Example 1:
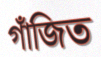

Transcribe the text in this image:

গাঁজিত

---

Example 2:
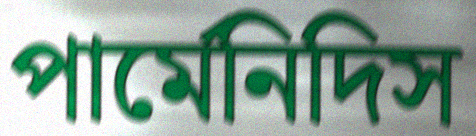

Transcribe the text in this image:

পার্মেনিদিস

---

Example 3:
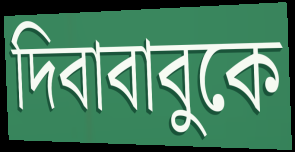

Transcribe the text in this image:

দিবাবাবুকে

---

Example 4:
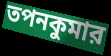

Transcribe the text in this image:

তপনকুমার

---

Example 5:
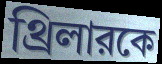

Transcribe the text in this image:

থ্রিলারকে